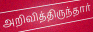
அறிவித்திருந்தார்